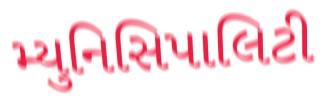
મ્યુનિસિપાલિટી